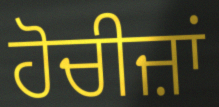
ਹੋਚੀਜ਼ਾਂ